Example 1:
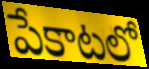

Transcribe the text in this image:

పేకాటలో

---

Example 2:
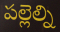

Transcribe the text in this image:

పల్లెల్ని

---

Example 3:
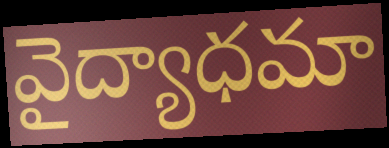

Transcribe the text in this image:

వైద్యాధమా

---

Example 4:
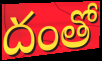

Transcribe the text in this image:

దంతో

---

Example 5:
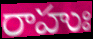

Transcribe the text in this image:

రాహుః